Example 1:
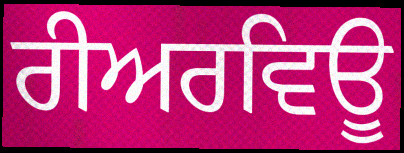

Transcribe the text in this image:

ਰੀਅਰਵਿਊ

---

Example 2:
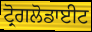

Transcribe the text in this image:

ਟ੍ਰੋਗਲੋਡਾਈਟ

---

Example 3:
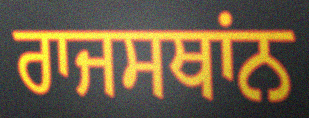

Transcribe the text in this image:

ਰਾਜਸਥਾਂਨ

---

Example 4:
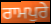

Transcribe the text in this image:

ਰਾਮਪੁਰੇ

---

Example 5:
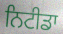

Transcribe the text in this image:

ਨਿਟੀਡਾ